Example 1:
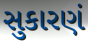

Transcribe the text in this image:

સુકારણં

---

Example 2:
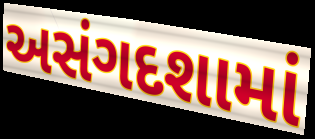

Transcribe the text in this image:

અસંગદશામાં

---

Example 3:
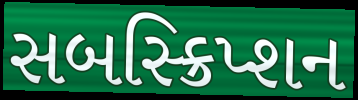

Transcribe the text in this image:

સબસ્ક્રિપ્શન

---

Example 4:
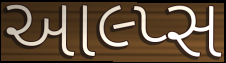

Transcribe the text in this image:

આલ્પ્સ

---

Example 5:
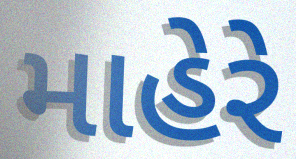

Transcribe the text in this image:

માહેરે